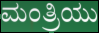
ಮಂತ್ರಿಯು